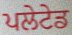
ਪਲੇਟੇਡ